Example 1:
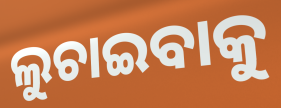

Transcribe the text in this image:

ଲୁଚାଇବାକୁ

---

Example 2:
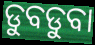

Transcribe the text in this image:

ଡୁବଡୁବା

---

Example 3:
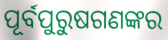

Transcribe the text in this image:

ପୂର୍ବପୁରୁଷଗଣଙ୍କର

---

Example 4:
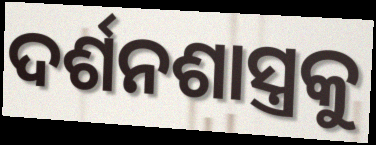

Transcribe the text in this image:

ଦର୍ଶନଶାସ୍ତ୍ରକୁ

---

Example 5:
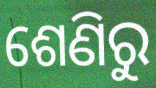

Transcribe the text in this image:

ଶେଣିରୁ